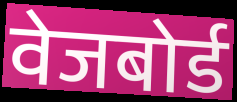
वेजबोर्ड